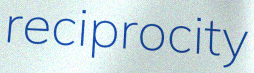
reciprocity